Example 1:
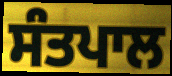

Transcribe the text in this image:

ਸੰਤਪਾਲ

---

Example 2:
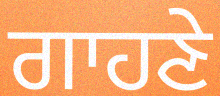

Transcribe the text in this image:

ਗਾਹਣੇ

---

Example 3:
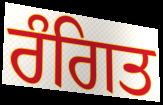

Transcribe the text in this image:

ਰੰਗਿਤ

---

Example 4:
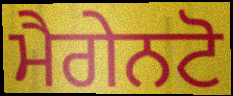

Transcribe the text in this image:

ਮੈਗੇਨਟੋ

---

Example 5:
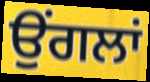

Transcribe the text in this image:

ਉੰਗਲਾਂ